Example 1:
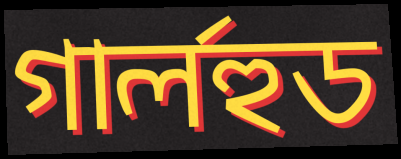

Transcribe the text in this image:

গার্লহুড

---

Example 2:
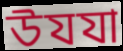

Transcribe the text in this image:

উযযা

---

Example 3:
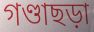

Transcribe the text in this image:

গণ্ডাছড়া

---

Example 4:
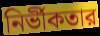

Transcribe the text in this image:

নির্ভীকতার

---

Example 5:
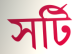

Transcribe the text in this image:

সর্টি